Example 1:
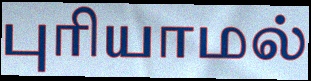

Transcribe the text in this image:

புரியாமல்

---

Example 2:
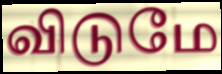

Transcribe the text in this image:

விடுமே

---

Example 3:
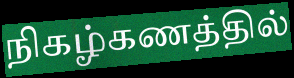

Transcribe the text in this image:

நிகழ்கணத்தில்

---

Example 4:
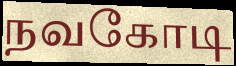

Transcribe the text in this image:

நவகோடி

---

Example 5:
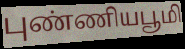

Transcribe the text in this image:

புண்ணியபூமி